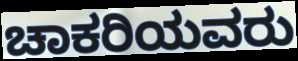
ಚಾಕರಿಯವರು